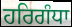
ਹਰਿਗੰਧਾ